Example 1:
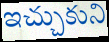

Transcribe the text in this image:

ఇచ్చుకుని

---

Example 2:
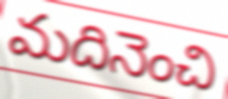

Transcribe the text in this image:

మదినెంచి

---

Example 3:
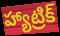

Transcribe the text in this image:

హ్యాట్రిక్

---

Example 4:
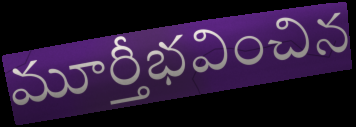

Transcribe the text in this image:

మూర్తీభవించిన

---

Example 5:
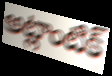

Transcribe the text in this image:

అట్లాంటిక్